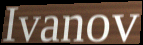
Ivanov